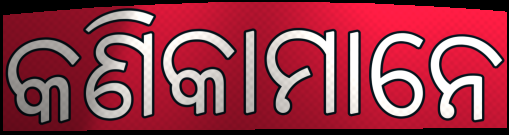
କଣିକାମାନେ